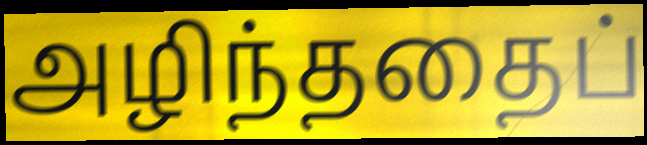
அழிந்ததைப்